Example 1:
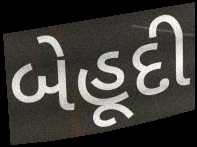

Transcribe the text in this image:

બેહૂદી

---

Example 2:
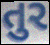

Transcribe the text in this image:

તુર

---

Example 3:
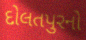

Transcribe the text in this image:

દોલતપુરનો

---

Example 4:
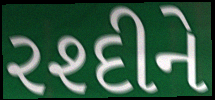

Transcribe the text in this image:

રશ્દીને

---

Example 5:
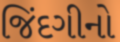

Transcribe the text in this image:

જિંદગીનો